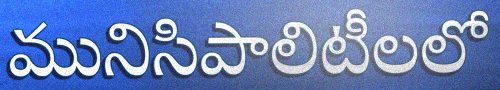
మునిసిపాలిటీలలో